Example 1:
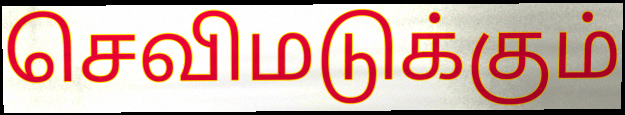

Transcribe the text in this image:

செவிமடுக்கும்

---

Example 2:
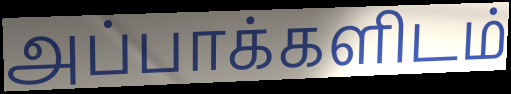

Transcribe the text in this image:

அப்பாக்களிடம்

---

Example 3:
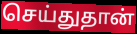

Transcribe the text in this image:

செய்துதான்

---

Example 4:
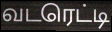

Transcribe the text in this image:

வடரெட்டி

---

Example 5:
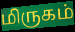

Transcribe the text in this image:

மிருகம்